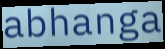
abhanga